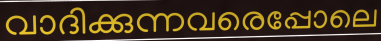
വാദിക്കുന്നവരെപ്പോലെ